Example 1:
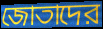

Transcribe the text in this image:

জোতাদের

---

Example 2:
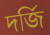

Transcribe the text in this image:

দর্জি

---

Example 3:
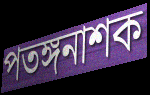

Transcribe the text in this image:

পতঙ্গনাশক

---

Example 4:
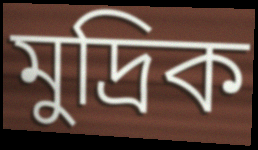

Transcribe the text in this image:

মুদ্রিক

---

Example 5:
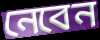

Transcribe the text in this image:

নেবেন